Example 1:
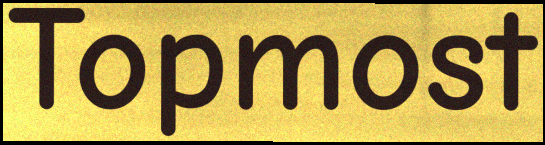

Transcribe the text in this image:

Topmost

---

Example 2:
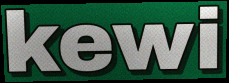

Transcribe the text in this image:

kewi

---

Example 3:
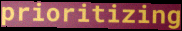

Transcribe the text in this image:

prioritizing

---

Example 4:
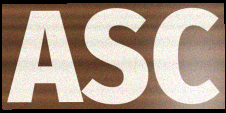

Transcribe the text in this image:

ASC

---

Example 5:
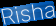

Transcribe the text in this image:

Risha